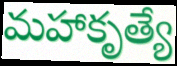
మహాకృత్యే